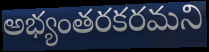
అభ్యంతరకరమని